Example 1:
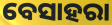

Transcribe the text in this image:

ବେସାହରା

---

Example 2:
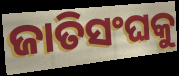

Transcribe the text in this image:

ଜାତିସଂଘକୁ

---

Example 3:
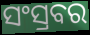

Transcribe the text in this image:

ସଂସ୍ରବର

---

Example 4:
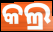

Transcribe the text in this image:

କଲ୍ର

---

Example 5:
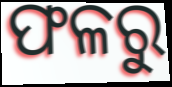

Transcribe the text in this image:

ଫଳରୁ